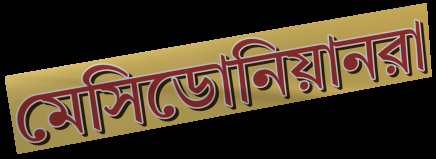
মেসিডোনিয়ানরা